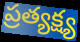
ప్రత్యక్ష్య